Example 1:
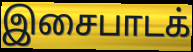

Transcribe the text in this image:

இசைபாடக்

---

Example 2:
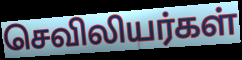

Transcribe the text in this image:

செவிலியர்கள்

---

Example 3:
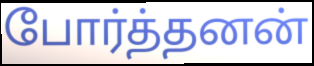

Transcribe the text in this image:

போர்த்தனன்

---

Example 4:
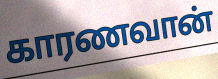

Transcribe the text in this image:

காரணவான்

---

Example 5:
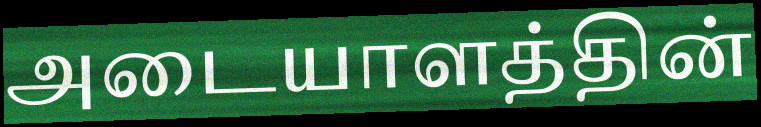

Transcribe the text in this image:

அடையாளத்தின்